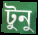
টুনু